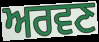
ਅਰਵਣ